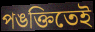
পঙক্তিতেই